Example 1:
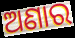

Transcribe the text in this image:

ଅଣାର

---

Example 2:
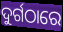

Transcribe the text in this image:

ଦୁର୍ଗଠାରେ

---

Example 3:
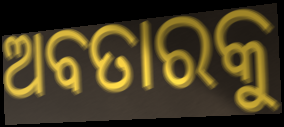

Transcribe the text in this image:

ଅବତାରକୁ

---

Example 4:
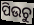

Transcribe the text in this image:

ପିଉଚୁ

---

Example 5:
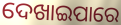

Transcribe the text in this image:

ଦେଖାଇପାରେ